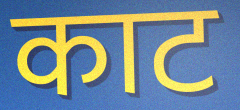
काट